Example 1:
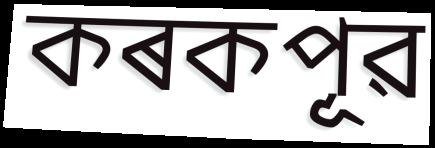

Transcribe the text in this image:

কৰকপূৱ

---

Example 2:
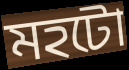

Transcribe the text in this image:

মহটো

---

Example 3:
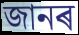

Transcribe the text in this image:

জানৰ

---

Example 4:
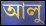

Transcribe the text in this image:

আলু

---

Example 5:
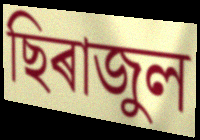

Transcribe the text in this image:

ছিৰাজুল